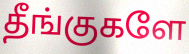
தீங்குகளே